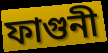
ফাগুনী